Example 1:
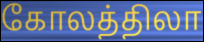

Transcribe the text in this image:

கோலத்திலா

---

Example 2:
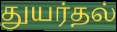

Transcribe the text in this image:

துயர்தல்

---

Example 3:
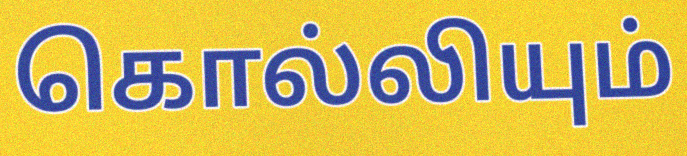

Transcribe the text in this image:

கொல்லியும்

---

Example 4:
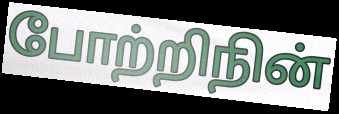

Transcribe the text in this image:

போற்றிநின்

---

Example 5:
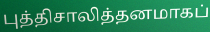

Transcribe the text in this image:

புத்திசாலித்தனமாகப்